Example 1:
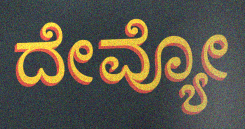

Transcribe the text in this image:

ದೇವ್ಯೋ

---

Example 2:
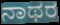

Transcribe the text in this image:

ನಾಥರ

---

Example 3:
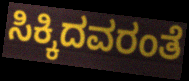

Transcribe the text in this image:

ಸಿಕ್ಕಿದವರಂತೆ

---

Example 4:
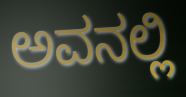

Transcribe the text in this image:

ಅವನಲ್ಲಿ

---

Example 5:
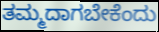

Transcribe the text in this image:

ತಮ್ಮದಾಗಬೇಕೆಂದು